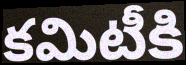
కమిటీకి